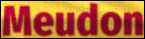
Meudon